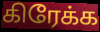
கிரேக்க